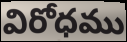
విరోధము